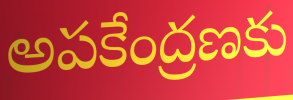
అపకేంద్రణకు